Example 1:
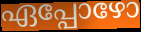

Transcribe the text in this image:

ഏപ്പോഴോ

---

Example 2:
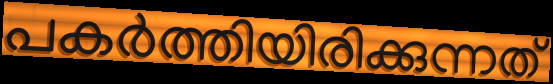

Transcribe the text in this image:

പകർത്തിയിരിക്കുന്നത്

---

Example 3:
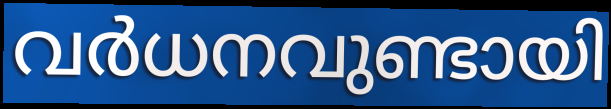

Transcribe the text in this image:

വർധനവുണ്ടായി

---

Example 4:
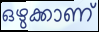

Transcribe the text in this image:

ഒഴുക്കാണ്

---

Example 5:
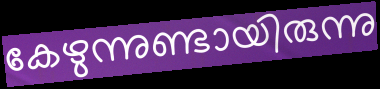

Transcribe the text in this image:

കേഴുന്നുണ്ടായിരുന്നു